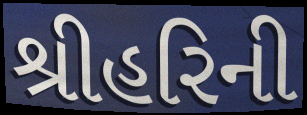
શ્રીહરિની